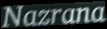
Nazrana